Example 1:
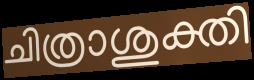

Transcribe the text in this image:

ചിത്രാശുക്തി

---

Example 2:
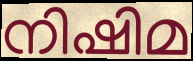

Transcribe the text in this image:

നിഷിമ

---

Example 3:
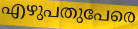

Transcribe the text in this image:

എഴുപതുപേരെ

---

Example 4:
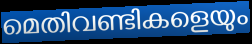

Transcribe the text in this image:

മെതിവണ്ടികളെയും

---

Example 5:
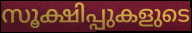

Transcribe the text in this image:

സൂക്ഷിപ്പുകളുടെ